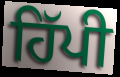
ਹਿੱਪੀ